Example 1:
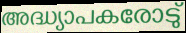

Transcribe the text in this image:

അദ്ധ്യാപകരോടു്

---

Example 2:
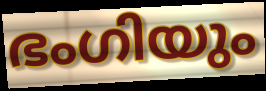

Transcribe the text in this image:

ഭംഗിയും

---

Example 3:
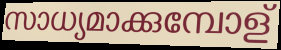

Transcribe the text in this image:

സാധ്യമാക്കുമ്പോള്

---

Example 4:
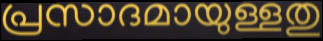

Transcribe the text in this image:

പ്രസാദമായുള്ളതു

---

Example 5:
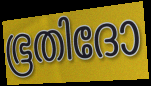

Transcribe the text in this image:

ഭൂതിദോ